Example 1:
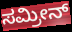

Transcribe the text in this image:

ಸಮ್ರೀನ್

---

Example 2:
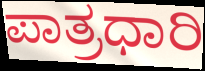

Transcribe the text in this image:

ಪಾತ್ರಧಾರಿ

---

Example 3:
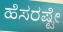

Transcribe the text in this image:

ಹೆಸರಷ್ಟೇ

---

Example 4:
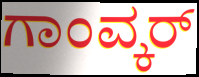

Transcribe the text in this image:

ಗಾಂವ್ಕರ್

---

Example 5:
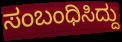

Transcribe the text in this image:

ಸಂಬಂಧಿಸಿದ್ದು